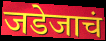
जडेजाचं